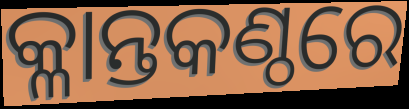
କ୍ଳାନ୍ତକଣ୍ଠରେ